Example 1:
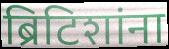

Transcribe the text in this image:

ब्रिटिशांना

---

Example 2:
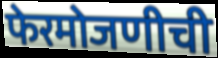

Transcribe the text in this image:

फेरमोजणीची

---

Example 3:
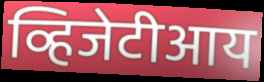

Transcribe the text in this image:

व्हिजेटीआय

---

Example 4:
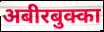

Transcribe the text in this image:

अबीरबुक्का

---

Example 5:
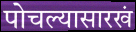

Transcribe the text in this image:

पोचल्यासारखं